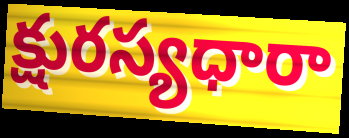
క్షురస్యధారా